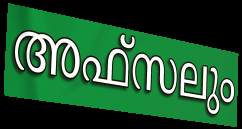
അഫ്സലും